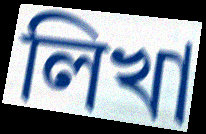
লিখা